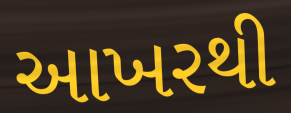
આખરથી